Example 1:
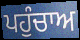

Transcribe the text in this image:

ਪਹੁੰਚਾਅ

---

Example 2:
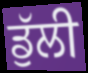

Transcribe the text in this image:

ਡੁੱਲੀ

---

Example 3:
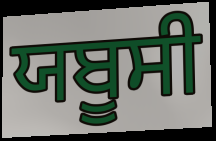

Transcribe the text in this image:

ਯਬੂਸੀ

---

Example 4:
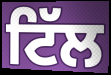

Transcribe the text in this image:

ਟਿੱਲ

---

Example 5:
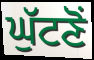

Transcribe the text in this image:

ਘੁੱਟਣੋਂ